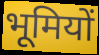
भूमियों